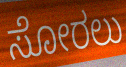
ಸೋರಲು